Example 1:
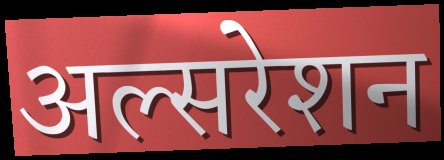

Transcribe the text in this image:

अल्सरेशन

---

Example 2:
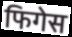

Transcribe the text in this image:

फिगेस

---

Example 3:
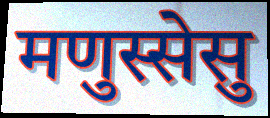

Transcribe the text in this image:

मणुस्सेसु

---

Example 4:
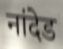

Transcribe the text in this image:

नांदेड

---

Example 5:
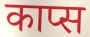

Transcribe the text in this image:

काप्स